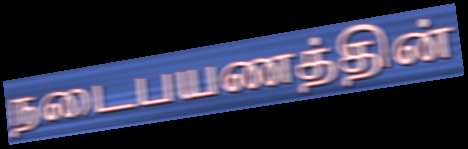
நடைபயணத்தின்